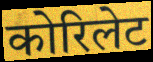
कोरिलेट